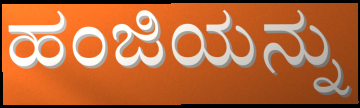
ಹಂಜಿಯನ್ನು